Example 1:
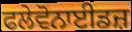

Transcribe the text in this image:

ਫਲੇਵੋਨਾਈਡਜ਼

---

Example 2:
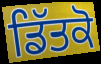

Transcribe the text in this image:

ਡਿੱਤਕੋ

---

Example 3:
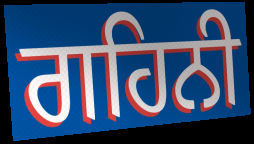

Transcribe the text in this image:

ਗਹਿਨੀ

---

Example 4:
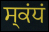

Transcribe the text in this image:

ਸ੍ਕਂਧਂ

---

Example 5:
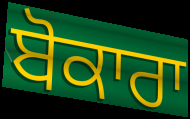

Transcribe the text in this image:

ਬੋਕਾਰਾ